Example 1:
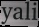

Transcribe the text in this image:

yali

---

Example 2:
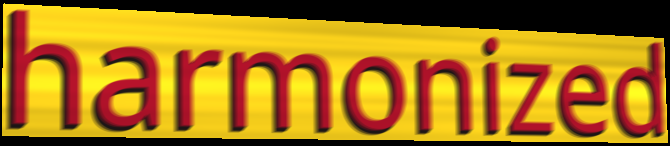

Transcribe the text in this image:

harmonized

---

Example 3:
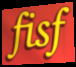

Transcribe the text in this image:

fisf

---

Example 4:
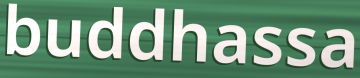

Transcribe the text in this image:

buddhassa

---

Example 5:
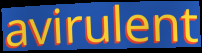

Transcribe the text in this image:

avirulent